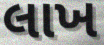
લાખ